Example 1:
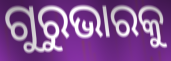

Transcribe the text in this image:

ଗୁରୁଭାରକୁ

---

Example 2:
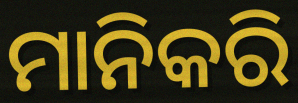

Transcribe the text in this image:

ମାନିକରି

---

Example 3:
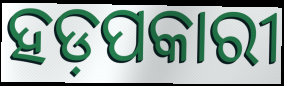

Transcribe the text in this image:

ହଡ଼ପକାରୀ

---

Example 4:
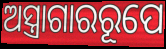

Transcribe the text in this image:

ଅସ୍ତ୍ରାଗାରରୂପେ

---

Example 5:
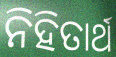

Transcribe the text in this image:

ନିହିତାର୍ଥ